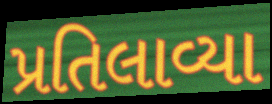
પ્રતિલાવ્યા